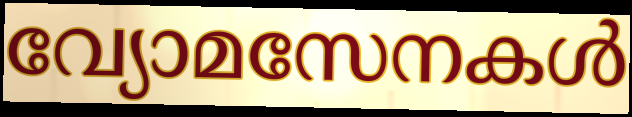
വ്യോമസേനകൾ